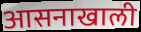
आसनाखाली